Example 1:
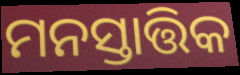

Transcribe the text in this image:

ମନସ୍ତାତ୍ତିକ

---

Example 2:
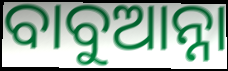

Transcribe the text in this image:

ବାବୁଆନ୍ନା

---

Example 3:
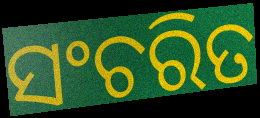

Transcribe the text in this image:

ସଂଚରିତ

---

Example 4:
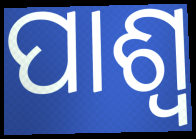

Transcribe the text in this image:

ପାଶ୍ୱ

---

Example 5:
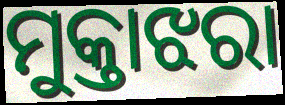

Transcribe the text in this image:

ମୁକ୍ତାଝରା